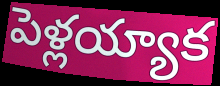
పెళ్లయ్యాక